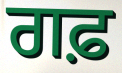
ਗਫ਼